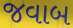
જવાબ